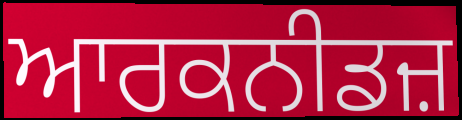
ਆਰਕਨੀਡਜ਼